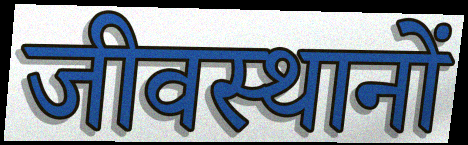
जीवस्थानों